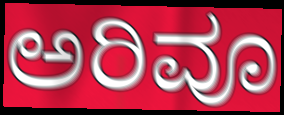
ಅರಿವೂ